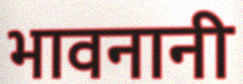
भावनानी